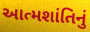
આત્મશાંતિનું